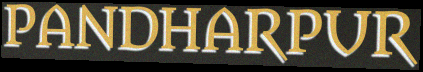
PANDHARPUR